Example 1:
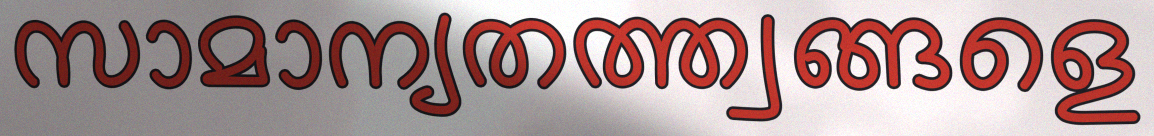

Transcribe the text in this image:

സാമാന്യതത്ത്വങ്ങളെ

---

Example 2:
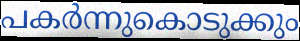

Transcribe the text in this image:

പകർന്നുകൊടുക്കും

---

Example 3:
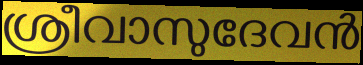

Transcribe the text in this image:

ശ്രീവാസുദേവൻ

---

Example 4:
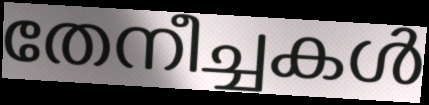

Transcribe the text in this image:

തേനീച്ചകൾ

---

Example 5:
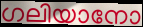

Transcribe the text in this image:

ഗലിയാനോ